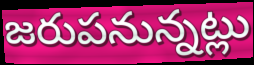
జరుపనున్నట్లు